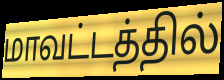
மாவட்டத்தில்